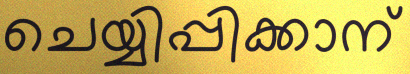
ചെയ്യിപ്പിക്കാന്